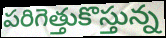
పరిగెత్తుకొస్తున్న